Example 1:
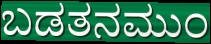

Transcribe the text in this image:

ಬಡತನಮುಂ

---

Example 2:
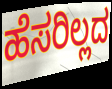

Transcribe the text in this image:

ಹೆಸರಿಲ್ಲದ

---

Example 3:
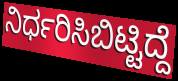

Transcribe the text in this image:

ನಿರ್ಧರಿಸಿಬಿಟ್ಟಿದ್ದೆ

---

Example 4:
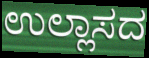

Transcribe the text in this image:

ಉಲ್ಲಾಸದ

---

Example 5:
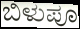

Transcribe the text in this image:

ಬಿಳುಪೂ